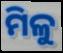
ମିଳୁ